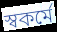
স্বকর্মে